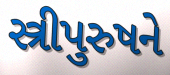
સ્ત્રીપુરુષને